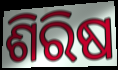
ଶିରିଷ